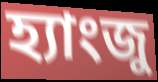
হ্যাংজু